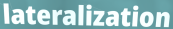
lateralization